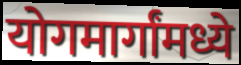
योगमार्गांमध्ये